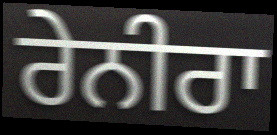
ਰੇਨੀਰਾ